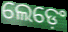
ଲେଡ଼େଂ